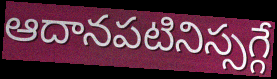
ఆదానపటినిస్సగ్గే